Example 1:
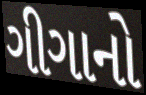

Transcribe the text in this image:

ગીગાનો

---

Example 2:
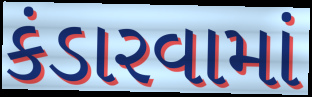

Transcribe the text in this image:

કંડારવામાં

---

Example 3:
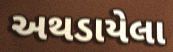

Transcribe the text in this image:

અથડાયેલા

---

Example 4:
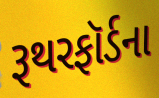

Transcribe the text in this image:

રૂથરફૉર્ડના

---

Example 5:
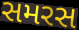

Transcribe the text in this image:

સમરસ